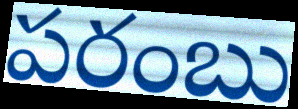
పరంబు